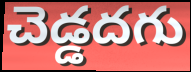
చెడ్డదగు